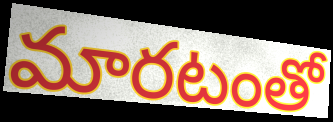
మారటంతో